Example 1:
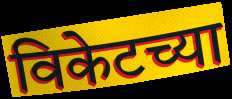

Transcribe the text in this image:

विकेटच्या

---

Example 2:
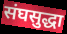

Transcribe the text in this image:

संघसुद्धा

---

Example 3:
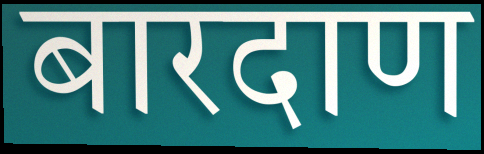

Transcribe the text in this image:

बारदाण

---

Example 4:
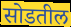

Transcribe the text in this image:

सोडतील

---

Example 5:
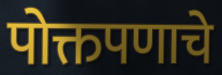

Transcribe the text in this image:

पोक्तपणाचे